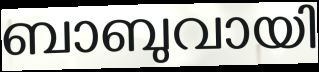
ബാബുവായി